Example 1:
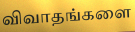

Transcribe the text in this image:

விவாதங்களை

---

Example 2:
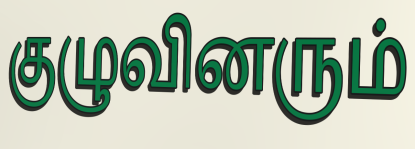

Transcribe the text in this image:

குழுவினரும்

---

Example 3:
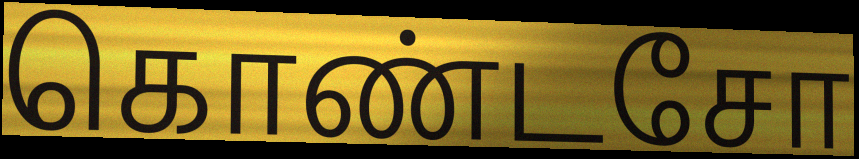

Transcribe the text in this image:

கொண்டசோ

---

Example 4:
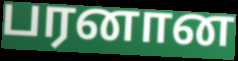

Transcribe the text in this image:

பரனான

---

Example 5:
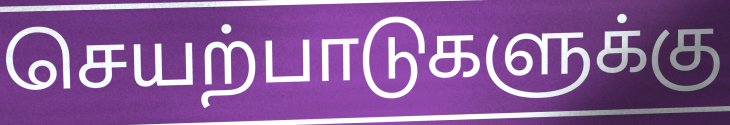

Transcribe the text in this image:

செயற்பாடுகளுக்கு